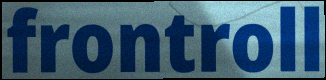
frontroll